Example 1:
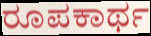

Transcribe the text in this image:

ರೂಪಕಾರ್ಥ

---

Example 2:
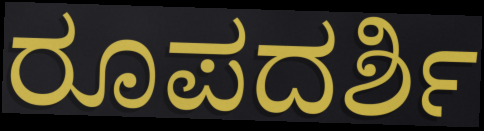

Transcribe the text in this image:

ರೂಪದರ್ಶಿ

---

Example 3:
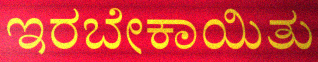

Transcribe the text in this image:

ಇರಬೇಕಾಯಿತು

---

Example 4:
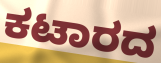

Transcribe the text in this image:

ಕಟಾರದ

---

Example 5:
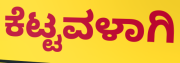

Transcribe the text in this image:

ಕೆಟ್ಟವಳಾಗಿ